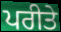
ਪਰੀਤੇ